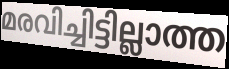
മരവിച്ചിട്ടില്ലാത്ത